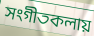
সংগীতকলায়